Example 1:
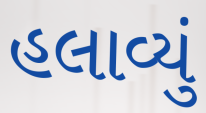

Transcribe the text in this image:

હલાવ્યું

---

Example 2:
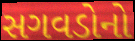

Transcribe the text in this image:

સગવડોનો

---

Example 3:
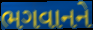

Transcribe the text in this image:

ભગવાનને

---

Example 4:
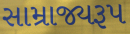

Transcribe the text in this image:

સામ્રાજ્યરૂપ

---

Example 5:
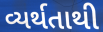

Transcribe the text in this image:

વ્યર્થતાથી